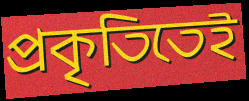
প্রকৃতিতেই